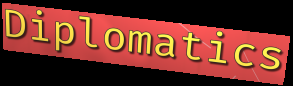
Diplomatics